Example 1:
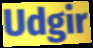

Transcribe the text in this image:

Udgir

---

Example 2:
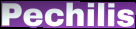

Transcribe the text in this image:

Pechilis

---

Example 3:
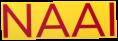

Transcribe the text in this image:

NAAI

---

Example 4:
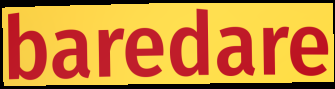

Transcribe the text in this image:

baredare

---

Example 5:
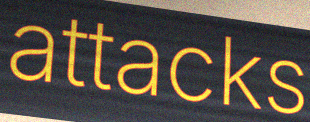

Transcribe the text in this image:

attacks